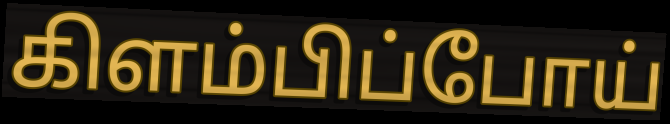
கிளம்பிப்போய்